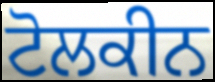
ਟੋਲਕੀਨ